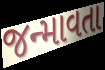
જન્માવતા